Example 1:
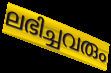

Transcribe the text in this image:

ലഭിച്ചവരും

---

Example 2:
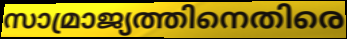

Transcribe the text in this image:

സാമ്രാജ്യത്തിനെതിരെ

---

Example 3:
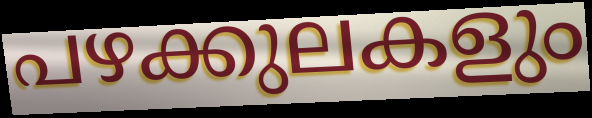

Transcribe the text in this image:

പഴക്കുലകളും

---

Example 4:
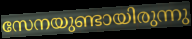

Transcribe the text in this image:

സേനയുണ്ടായിരുന്നു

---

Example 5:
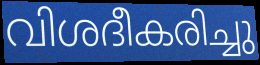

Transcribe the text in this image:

വിശദീകരിച്ചു